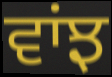
ਵਾਂਝ